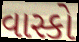
વાસ્કો